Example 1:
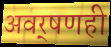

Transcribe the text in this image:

अवर्षणही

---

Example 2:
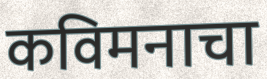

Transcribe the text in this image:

कविमनाचा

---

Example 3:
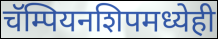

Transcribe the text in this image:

चॅम्पियनशिपमध्येही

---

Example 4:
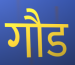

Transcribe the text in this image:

गौड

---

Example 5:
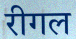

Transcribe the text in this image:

रीगल